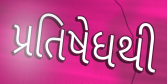
પ્રતિષેધથી